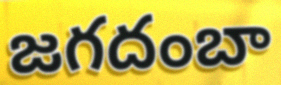
జగదంబా